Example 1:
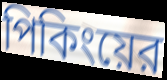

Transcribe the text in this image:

পিকিংয়ের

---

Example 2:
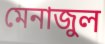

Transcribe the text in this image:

মেনাজুল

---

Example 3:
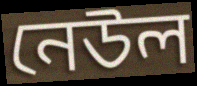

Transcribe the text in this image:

নেউল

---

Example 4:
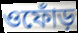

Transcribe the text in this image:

ওফোঁড়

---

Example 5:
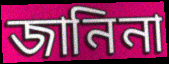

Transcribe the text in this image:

জানিনা